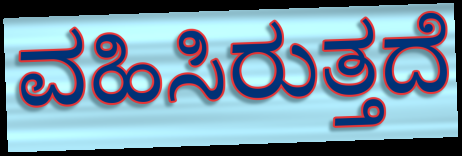
ವಹಿಸಿರುತ್ತದೆ